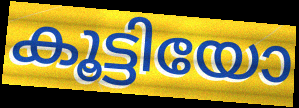
കൂട്ടിയോ